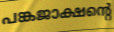
പങ്കജാക്ഷന്റെ